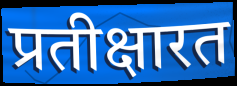
प्रतीक्षारत